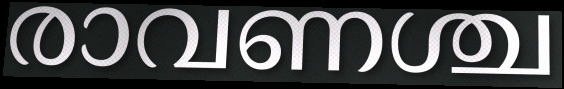
രാവണശ്ച